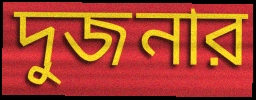
দুজনার